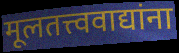
मूलतत्त्ववाद्यांना